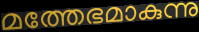
മത്തേഭമാകുന്നു